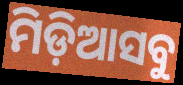
ମିଡ଼ିଆସବୁ